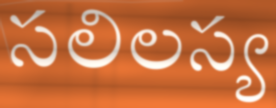
సలిలస్య